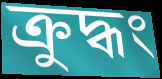
ক্রুদ্ধং